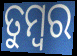
ତୁମ୍ବର